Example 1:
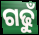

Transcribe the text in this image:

ଗଢୁଁ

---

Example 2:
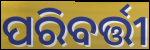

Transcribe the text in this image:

ପରିବର୍ତ୍ତୀ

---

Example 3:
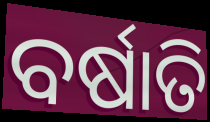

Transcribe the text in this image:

ବର୍ଷାତି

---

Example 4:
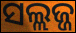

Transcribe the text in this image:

ସଲ୍ଲଜ୍ଜ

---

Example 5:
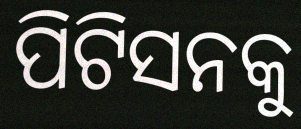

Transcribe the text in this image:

ପିଟିସନକୁ